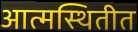
आत्मस्थितीत